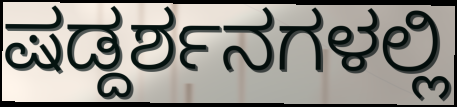
ಷಡ್ದರ್ಶನಗಳಲ್ಲಿ